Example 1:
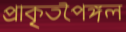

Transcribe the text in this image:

প্ৰাকৃতপৈঙ্গল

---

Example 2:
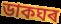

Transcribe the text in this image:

ডাকঘৰ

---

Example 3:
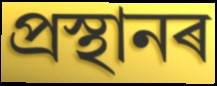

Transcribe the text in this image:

প্ৰস্থানৰ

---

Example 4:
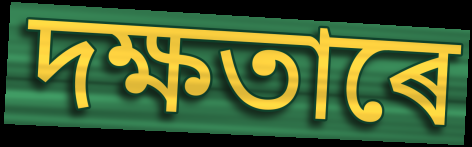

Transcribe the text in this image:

দক্ষতাৰে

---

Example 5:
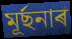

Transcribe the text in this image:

মূৰ্ছনাৰ